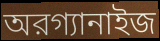
অরগ্যানাইজ